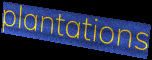
plantations